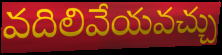
వదిలివేయవచ్చు